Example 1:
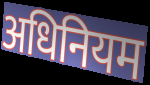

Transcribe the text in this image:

अधिनियम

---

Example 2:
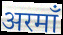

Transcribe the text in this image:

अरमाँ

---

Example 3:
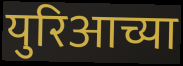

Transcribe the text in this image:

युरिआच्या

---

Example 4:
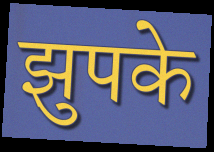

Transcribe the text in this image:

झुपके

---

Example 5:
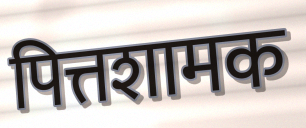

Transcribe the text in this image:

पित्तशामक